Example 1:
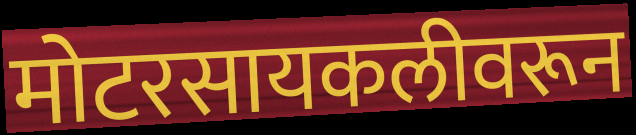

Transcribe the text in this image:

मोटरसायकलीवरून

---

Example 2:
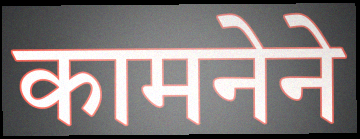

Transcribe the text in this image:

कामनेने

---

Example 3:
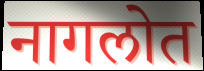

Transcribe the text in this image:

नागलोत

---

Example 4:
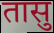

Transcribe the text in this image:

तासु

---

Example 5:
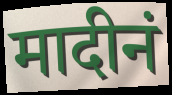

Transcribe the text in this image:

मादीनं